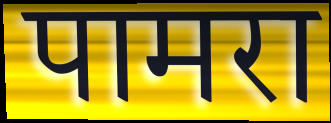
पामरा